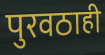
पुरवठाही